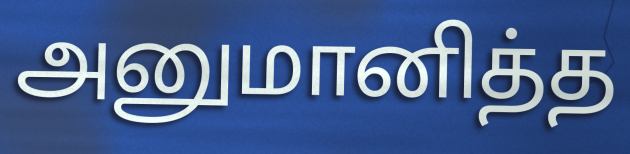
அனுமானித்த